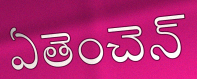
ఏతెంచెన్